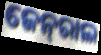
ଜେନ୍‌ରାଲ